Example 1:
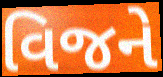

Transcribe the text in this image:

વિજને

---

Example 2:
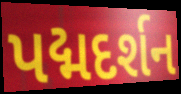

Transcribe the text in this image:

પદ્મદર્શન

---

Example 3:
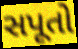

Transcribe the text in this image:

સપૂતો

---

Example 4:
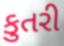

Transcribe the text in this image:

કુતરી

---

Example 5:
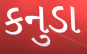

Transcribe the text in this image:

કનુડા